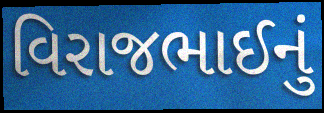
વિરાજભાઈનું